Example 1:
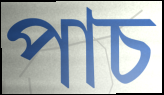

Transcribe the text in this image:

পাচ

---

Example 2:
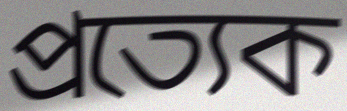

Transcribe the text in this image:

প্ৰত্যেক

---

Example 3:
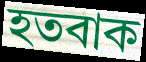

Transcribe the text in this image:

হতবাক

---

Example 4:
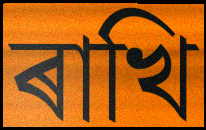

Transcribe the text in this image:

ৰাখি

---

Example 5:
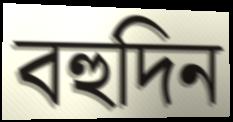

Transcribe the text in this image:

বহুদিন